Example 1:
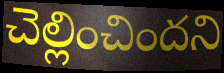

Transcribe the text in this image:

చెల్లించిందని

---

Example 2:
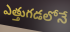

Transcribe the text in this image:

ఎత్తుగడలోనే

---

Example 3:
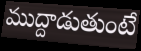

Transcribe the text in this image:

ముద్దాడుతుంటే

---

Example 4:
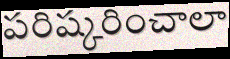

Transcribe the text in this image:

పరిష్కరించాలా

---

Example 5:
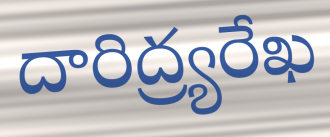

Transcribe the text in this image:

దారిద్ర్యరేఖ